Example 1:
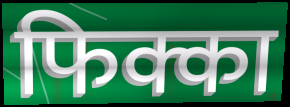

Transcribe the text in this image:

फिक्का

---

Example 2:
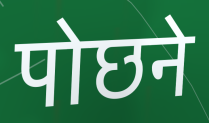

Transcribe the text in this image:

पोछने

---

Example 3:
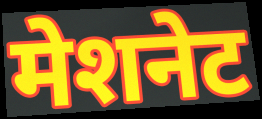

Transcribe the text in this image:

मेशनेट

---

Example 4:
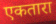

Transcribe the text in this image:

एकतारा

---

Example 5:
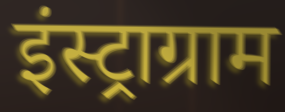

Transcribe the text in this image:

इंस्ट्राग्राम